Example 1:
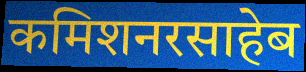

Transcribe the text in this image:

कमिशनरसाहेब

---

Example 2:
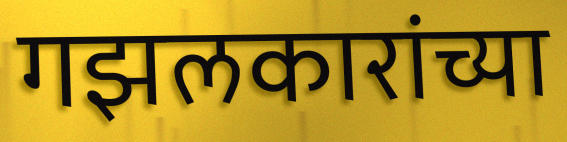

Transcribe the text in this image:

गझलकारांच्या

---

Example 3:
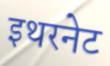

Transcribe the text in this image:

इथरनेट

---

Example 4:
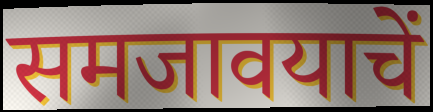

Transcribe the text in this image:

समजावयाचें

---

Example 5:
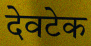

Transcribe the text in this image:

देवटेक